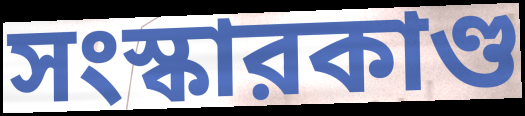
সংস্কারকাণ্ড